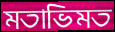
মতাভিমত